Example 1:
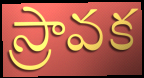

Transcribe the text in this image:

స్రావక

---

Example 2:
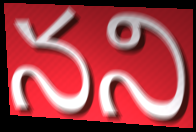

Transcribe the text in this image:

నని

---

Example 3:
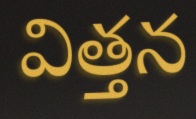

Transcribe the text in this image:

విత్తన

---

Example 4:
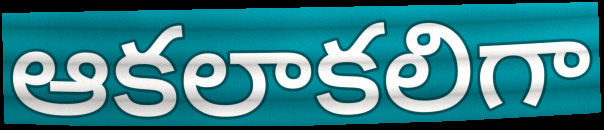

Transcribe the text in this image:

ఆకలాకలిగా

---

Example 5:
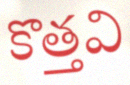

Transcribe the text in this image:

కొత్తవి